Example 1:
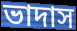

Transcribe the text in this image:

ভাদাস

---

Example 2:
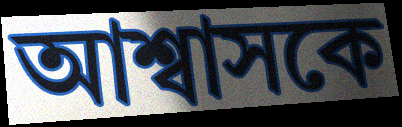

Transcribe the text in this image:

আশ্বাসকে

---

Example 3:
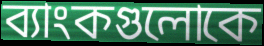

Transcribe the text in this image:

ব্যাংকগুলোকে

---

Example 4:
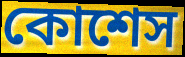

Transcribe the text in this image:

কোশেস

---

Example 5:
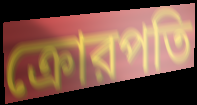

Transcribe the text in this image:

ক্রোরপতি